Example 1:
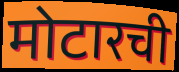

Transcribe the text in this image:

मोटारची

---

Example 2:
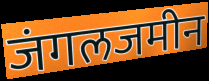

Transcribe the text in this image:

जंगलजमीन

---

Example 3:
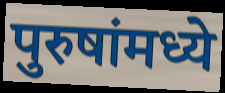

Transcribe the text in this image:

पुरुषांमध्ये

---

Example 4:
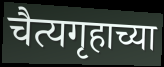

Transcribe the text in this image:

चैत्यगृहाच्या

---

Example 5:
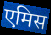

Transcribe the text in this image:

एमिस